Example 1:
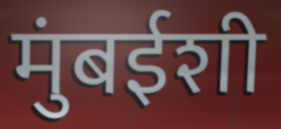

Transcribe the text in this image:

मुंबईशी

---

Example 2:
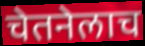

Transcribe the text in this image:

चेतनेलाच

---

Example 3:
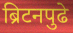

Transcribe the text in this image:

ब्रिटनपुढे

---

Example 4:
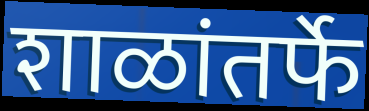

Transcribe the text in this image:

शाळांतर्फे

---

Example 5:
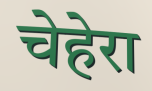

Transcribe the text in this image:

चेहेरा